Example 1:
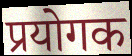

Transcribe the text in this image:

प्रयोगक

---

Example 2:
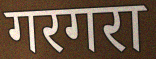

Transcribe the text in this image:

गरगरा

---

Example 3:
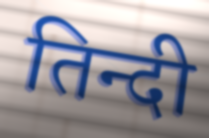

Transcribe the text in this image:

तिन्दी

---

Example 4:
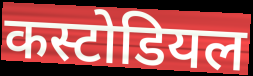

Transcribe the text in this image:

कस्टोडियल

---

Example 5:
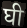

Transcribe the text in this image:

घी